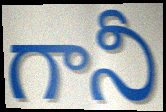
గానీ